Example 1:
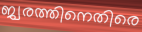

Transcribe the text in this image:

ജ്വരത്തിനെതിരെ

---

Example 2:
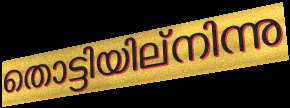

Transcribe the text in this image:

തൊട്ടിയില്നിന്നു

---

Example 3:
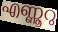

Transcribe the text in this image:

എണ്ണൂറു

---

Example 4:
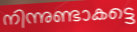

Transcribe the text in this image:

നിന്നുണ്ടാകട്ടെ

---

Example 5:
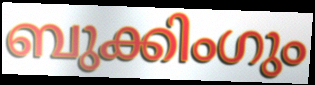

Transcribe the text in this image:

ബുക്കിംഗും